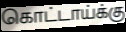
கொட்டாய்க்கு